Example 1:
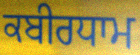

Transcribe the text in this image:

ਕਬੀਰਧਾਮ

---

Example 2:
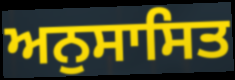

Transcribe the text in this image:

ਅਨੁਸਾਸਿਤ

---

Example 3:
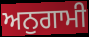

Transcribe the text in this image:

ਅਨੁਗਾਮੀ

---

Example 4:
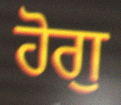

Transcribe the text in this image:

ਹੋਗੁ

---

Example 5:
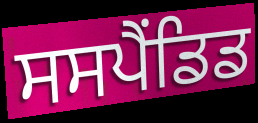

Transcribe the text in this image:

ਸਸਪੈਂਡਿਡ